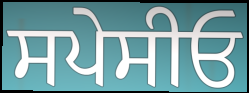
ਸਪੇਸੀਓ